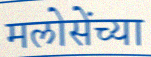
मलोसेंच्या